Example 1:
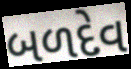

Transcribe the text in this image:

બળદેવ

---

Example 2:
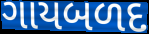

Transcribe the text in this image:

ગાયબળદ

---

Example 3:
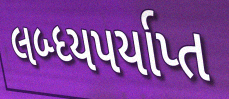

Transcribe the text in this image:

લબ્ધ્યપર્યાપ્ત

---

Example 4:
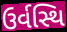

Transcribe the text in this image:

ઉર્વસ્થિ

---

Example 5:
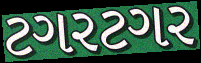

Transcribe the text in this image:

ટગરટગર